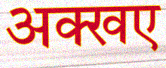
अक्खए